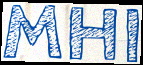
MHI